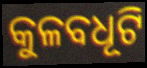
କୁଳବଧୂଟି